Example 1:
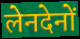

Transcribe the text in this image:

लेनदेनों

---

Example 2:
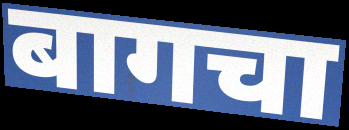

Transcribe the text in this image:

बागचा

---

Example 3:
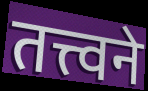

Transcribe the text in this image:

तत्त्वने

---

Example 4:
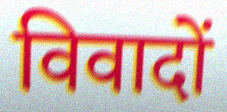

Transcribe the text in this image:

विवादों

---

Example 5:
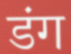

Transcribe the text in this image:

डंग